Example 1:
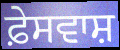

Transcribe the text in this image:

ਫ਼ੇਸਵਾਸ਼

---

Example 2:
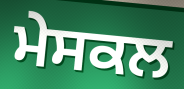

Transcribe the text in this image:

ਮੇਸਕਲ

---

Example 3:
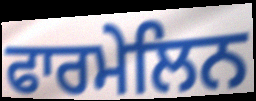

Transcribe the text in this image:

ਫਾਰਮੇਲਿਨ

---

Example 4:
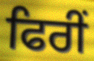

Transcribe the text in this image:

ਫਿਰੀਂ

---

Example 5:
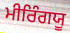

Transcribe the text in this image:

ਮੀਰਿੰਗਯੂ